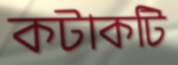
কটাকটি